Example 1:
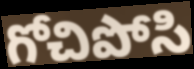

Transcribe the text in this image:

గోచిపోసి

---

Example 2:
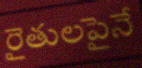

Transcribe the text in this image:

రైతులపైనే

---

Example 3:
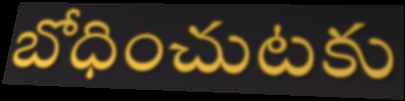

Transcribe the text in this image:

బోధించుటకు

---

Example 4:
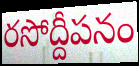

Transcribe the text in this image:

రసోద్దీపనం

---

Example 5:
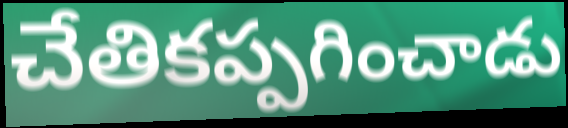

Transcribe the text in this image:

చేతికప్పగించాడు